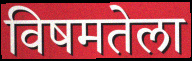
विषमतेला